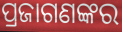
ପ୍ରଜାଗଣଙ୍କର